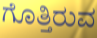
ಗೊತ್ತಿರುವ